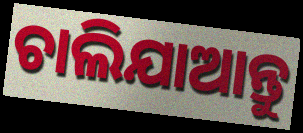
ଚାଲିଯାଆନ୍ତୁ